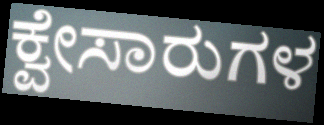
ಕ್ವೇಸಾರುಗಳ